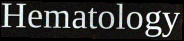
Hematology